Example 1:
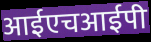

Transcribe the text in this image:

आईएचआईपी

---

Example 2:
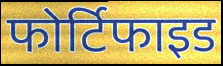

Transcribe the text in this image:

फोर्टिफाइड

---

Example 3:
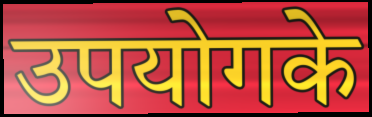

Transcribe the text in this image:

उपयोगके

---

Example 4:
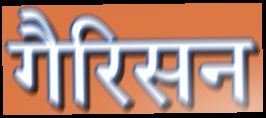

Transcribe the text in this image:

गैरिसन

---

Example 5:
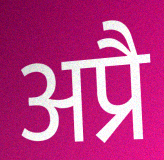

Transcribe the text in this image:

अप्रै